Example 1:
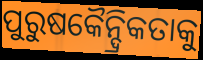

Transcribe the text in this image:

ପୁରୁଷକୈନ୍ଦ୍ରିକତାକୁ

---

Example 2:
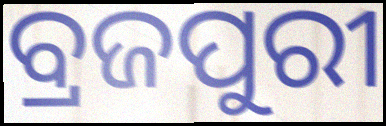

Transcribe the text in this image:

ବ୍ରଜପୁରୀ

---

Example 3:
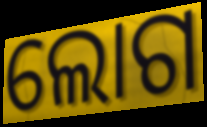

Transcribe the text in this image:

ଲୋଗ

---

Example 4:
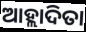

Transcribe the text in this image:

ଆହ୍ଲାଦିତା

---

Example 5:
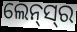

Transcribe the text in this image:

ଲେନ୍‌ସ୍‍ର